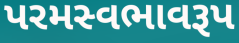
પરમસ્વભાવરૂપ